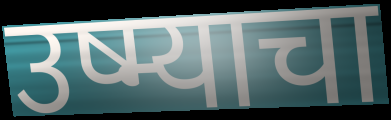
उष्म्याचा